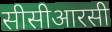
सीसीआरसी